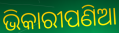
ଭିକାରୀପଣିଆ